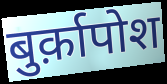
बुर्क़ापोश